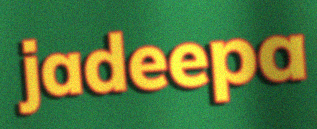
jadeepa